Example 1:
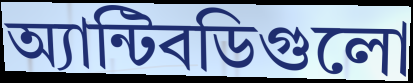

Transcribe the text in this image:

অ্যান্টিবডিগুলো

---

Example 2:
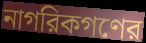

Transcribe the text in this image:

নাগরিকগণের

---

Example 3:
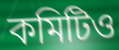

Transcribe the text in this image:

কমিটিও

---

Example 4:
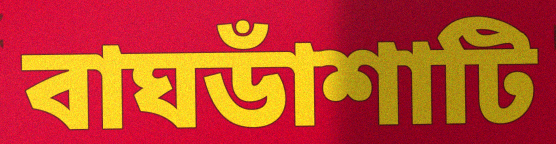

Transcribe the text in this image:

বাঘডাঁশাটি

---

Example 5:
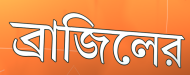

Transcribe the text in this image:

ব্রাজিলের